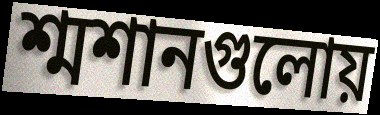
শ্মশানগুলোয়